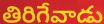
తిరిగేవాడు